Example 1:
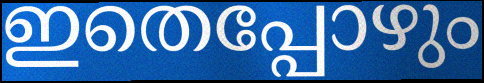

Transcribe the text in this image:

ഇതെപ്പോഴും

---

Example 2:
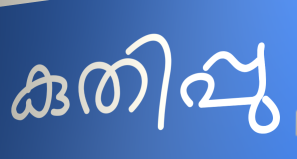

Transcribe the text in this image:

കുതിപ്പു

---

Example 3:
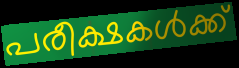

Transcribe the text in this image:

പരീക്ഷകൾക്ക്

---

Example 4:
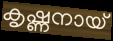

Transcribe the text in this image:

കൃഷ്ണനായ്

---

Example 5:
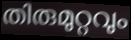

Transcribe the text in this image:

തിരുമുറ്റവും